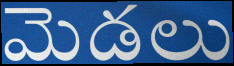
మెడలు